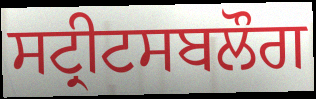
ਸਟ੍ਰੀਟਸਬਲੌਗ